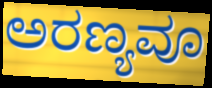
ಅರಣ್ಯವೂ